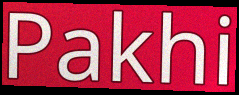
Pakhi